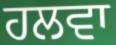
ਹਲਵਾ